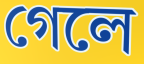
গেলে